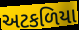
અટકળિયા